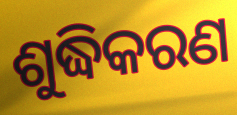
ଶୁଦ୍ଧିକରଣ